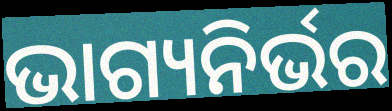
ଭାଗ୍ୟନିର୍ଭର